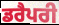
ਡਰੈਪਰੀ